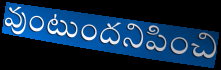
వుంటుందనిపించి